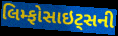
લિમ્ફોસાઇટ્સની